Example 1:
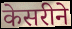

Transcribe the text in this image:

केसरीने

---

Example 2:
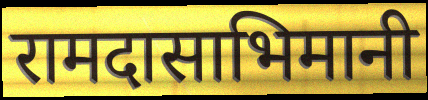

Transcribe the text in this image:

रामदासाभिमानी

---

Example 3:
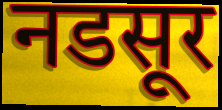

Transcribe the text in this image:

नडसूर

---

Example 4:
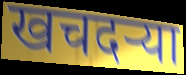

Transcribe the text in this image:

खचदऱ्या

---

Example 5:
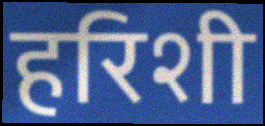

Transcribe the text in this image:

हरिशी